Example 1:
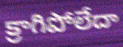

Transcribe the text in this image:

క్రాగిపోలేదా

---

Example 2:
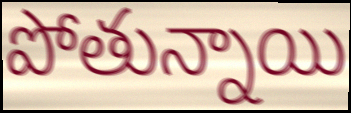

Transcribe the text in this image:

పోతున్నాయి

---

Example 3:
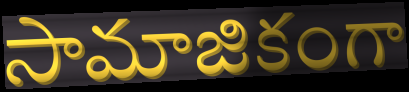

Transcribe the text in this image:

సామాజికంగా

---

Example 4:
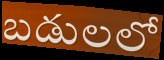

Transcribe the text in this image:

బడులలో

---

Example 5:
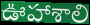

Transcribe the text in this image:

ఊహాశాలి